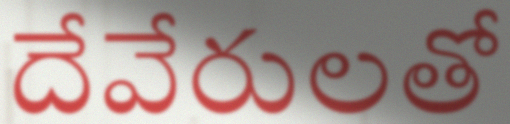
దేవేరులతో